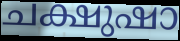
ചക്ഷുഷാ